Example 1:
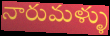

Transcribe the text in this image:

నారుమళ్ళు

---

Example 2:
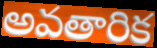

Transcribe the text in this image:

అవతారిక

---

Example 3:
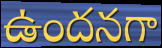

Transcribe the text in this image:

ఉందనగా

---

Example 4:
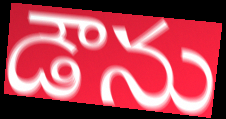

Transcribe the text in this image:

డౌను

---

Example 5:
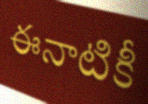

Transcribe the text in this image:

ఈనాటికీ